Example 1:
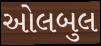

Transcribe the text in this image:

ઓલબુલ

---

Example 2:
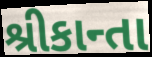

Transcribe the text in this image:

શ્રીકાન્તા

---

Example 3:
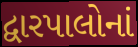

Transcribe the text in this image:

દ્વારપાલોનાં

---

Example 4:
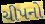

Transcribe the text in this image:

ચીપનો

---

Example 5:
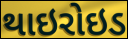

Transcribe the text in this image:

થાઇરોઇડ